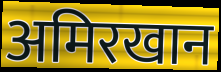
अमिरखान